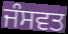
ਜੰਸਵਤ